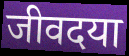
जीवदया